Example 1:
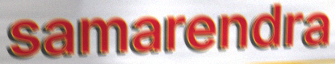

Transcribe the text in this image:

samarendra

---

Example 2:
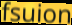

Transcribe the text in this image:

fsuion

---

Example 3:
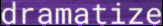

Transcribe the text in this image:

dramatize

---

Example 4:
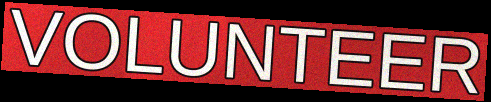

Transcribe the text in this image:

VOLUNTEER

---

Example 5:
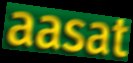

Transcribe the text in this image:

aasat